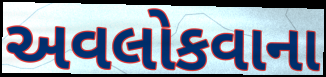
અવલોકવાના